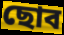
ছোব